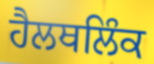
ਹੈਲਥਲਿੰਕ